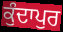
ਕੁੰਦਾਪੁਰ